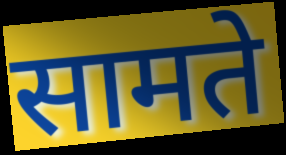
सामते